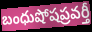
బంధుషోషప్రవర్తీ